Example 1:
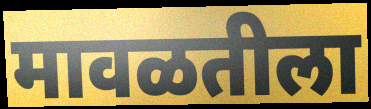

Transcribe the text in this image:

मावळतीला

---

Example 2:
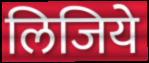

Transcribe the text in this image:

लिजिये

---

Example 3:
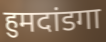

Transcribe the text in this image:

हुमदांडगा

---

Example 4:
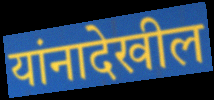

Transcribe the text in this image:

यांनादेखील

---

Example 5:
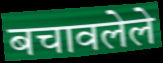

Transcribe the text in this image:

बचावलेले